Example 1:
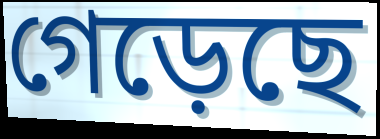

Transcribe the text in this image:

গেড়েছে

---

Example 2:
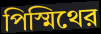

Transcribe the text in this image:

পিস্মিথের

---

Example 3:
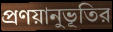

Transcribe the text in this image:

প্রণয়ানুভূতির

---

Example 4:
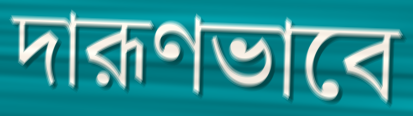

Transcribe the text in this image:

দারূণভাবে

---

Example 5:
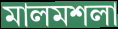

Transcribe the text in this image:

মালমশলা